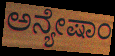
ಅನ್ಯೇಷಾಂ